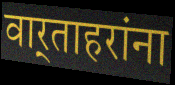
वार्ताहरांना